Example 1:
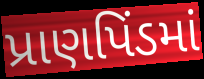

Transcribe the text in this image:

પ્રાણપિંડમાં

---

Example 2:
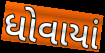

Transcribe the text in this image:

ધોવાયાં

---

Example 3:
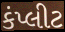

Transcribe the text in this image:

કંપ્લીટ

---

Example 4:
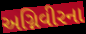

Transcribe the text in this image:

અગ્નિવીરના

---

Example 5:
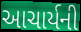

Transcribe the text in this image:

આચાર્યની